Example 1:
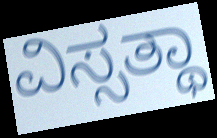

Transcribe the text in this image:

ವಿಸ್ಸತ್ಥಾ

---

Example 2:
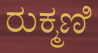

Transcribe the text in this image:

ರುಕ್ಮಣಿ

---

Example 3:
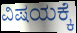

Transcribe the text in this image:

ವಿಷಯಕ್ಕೆ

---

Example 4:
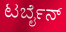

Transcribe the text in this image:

ಟರ್ಬೈನ್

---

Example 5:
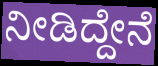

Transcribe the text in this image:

ನೀಡಿದ್ದೇನೆ